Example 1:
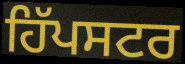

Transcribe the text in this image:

ਹਿੱਪਸਟਰ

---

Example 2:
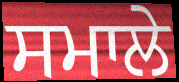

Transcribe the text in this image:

ਸਮਾਲੇ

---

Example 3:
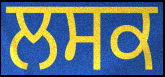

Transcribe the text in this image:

ਲਸਕ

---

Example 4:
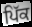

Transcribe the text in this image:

ਪਿੱਕ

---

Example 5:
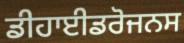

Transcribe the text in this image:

ਡੀਹਾਈਡਰੋਜਨਸ